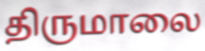
திருமாலை